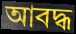
আবদ্ধ